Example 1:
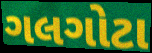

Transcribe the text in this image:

ગલગોટા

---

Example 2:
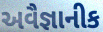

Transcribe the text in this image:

અવૈજ્ઞાનીક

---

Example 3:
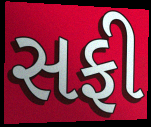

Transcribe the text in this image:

સફી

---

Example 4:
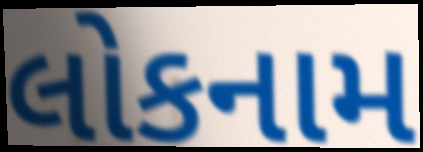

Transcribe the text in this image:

લોકનામ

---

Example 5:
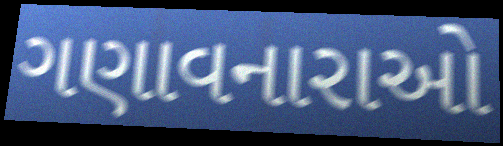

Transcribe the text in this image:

ગણાવનારાઓ